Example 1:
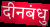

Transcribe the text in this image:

दीनबंधु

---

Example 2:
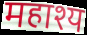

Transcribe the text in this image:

महाश्य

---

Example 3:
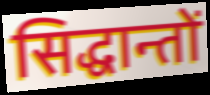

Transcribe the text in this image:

सिद्धान्तों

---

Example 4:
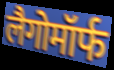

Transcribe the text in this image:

लैगोमॉर्फ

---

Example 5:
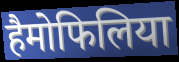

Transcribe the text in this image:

हैमोफिलिया